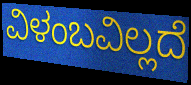
ವಿಳಂಬವಿಲ್ಲದೆ